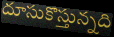
దూసుకొస్తున్నది